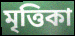
মৃত্তিকা